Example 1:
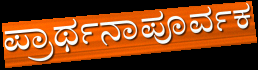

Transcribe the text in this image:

ಪ್ರಾರ್ಥನಾಪೂರ್ವಕ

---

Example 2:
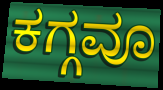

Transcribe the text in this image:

ಕಗ್ಗವೂ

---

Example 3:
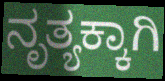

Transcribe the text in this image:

ನೃತ್ಯಕ್ಕಾಗಿ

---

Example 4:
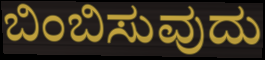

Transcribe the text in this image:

ಬಿಂಬಿಸುವುದು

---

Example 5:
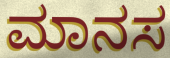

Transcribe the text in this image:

ಮಾನಸ